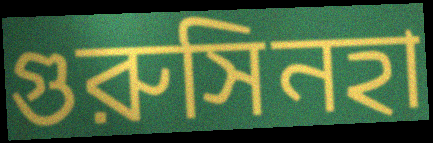
গুরুসিনহা